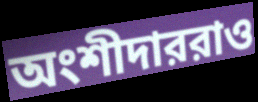
অংশীদাররাও